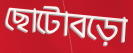
ছোটোবড়ো